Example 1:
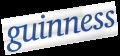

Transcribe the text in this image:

guinness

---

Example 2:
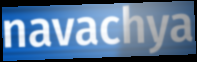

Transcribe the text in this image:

navachya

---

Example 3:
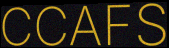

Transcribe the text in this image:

CCAFS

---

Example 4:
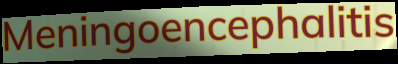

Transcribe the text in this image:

Meningoencephalitis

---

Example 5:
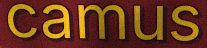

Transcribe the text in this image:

camus